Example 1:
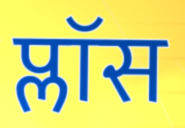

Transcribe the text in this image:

प्लॉस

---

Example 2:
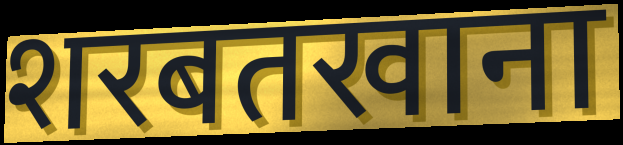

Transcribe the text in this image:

शरबतखाना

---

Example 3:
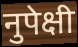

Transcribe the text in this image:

नुपेक्षी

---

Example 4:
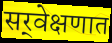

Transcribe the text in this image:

सर्वेक्षणात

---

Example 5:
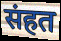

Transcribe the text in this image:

संहत